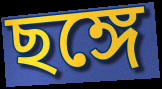
ছঙ্গে